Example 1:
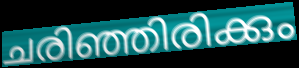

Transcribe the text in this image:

ചരിഞ്ഞിരിക്കും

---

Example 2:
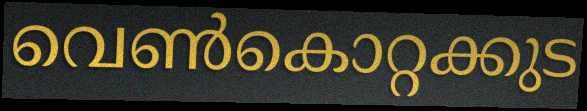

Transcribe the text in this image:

വെൺകൊറ്റക്കുട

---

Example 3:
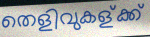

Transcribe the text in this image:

തെളിവുകള്ക്ക്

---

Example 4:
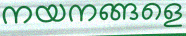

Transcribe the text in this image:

നയനങ്ങളെ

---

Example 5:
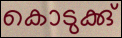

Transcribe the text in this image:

കൊടുക്കു്